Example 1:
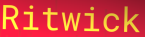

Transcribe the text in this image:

Ritwick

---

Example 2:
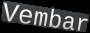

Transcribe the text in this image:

Vembar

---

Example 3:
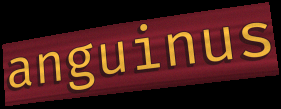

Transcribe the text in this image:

anguinus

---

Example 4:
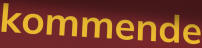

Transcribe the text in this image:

kommende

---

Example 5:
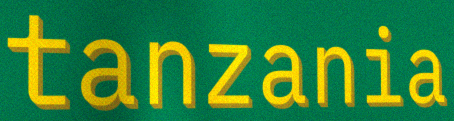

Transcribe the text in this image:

tanzania